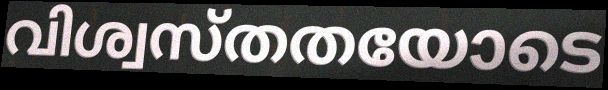
വിശ്വസ്തതയോടെ